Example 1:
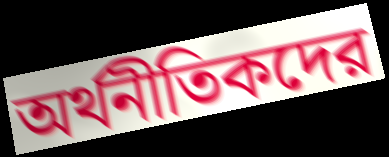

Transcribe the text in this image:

অর্থনীতিকদের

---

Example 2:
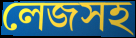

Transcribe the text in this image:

লেজসহ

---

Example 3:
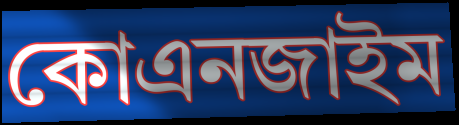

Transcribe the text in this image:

কোএনজাইম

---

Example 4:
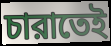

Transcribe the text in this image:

চারাতেই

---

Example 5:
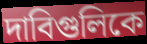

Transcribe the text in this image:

দাবিগুলিকে